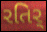
રતિર્